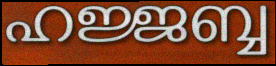
ഹജ്ജബ്ബ